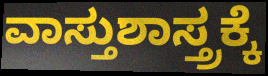
ವಾಸ್ತುಶಾಸ್ತ್ರಕ್ಕೆ